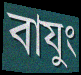
বাযুং